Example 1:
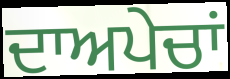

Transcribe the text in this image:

ਦਾਅਪੇਚਾਂ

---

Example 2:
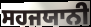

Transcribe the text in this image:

ਸਹਜਯਾਨੀ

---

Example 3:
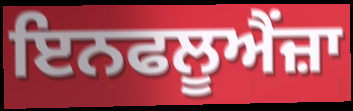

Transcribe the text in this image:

ਇਨਫਲੂਐਂਜ਼ਾ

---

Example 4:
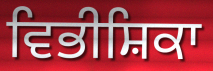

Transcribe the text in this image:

ਵਿਭੀਸ਼ਿਕਾ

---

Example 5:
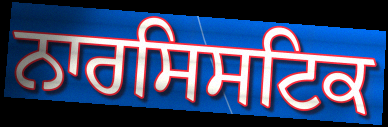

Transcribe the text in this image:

ਨਾਰਸਿਸਟਿਕ